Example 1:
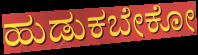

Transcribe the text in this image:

ಹುಡುಕಬೇಕೋ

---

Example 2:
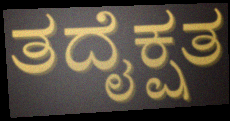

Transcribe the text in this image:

ತದೈಕ್ಷತ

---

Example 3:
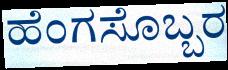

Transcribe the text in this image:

ಹೆಂಗಸೊಬ್ಬರ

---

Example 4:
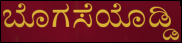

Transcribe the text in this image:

ಬೊಗಸೆಯೊಡ್ಡಿ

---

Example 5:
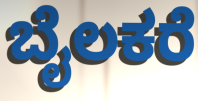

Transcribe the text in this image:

ಬೈಲಕರೆ